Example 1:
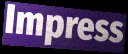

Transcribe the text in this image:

Impress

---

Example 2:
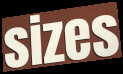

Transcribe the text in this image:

sizes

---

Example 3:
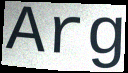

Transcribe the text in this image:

Arg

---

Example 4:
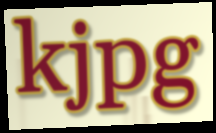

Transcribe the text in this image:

kjpg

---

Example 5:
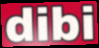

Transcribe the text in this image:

dibi